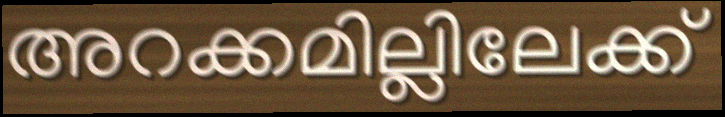
അറക്കമില്ലിലേക്ക്